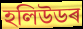
হলিউডৰ